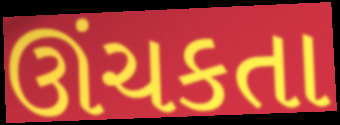
ઊંચકતા